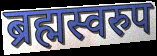
ब्रह्मस्वरुप